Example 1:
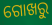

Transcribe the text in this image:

ଗୋଖରୁ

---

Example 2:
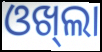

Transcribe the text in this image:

ଓଖ୍‌ଲା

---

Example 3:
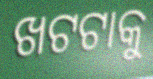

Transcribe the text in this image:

ଖଟଟାକୁ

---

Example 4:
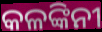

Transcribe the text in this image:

କଳଙ୍କିନୀ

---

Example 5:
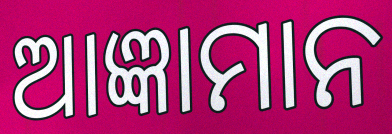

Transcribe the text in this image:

ଆଜ୍ଞାମାନ